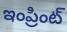
ఇంప్రింట్